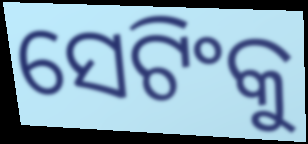
ସେଟିଂକୁ